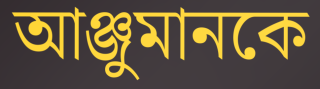
আঞ্জুমানকে